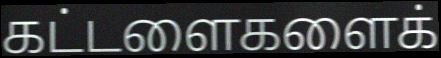
கட்டளைகளைக்